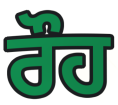
ਰੌਹ